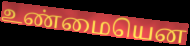
உண்மையென